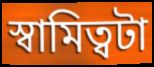
স্বামিত্বটা